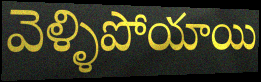
వెళ్ళిపోయాయి